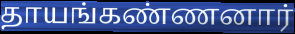
தாயங்கண்ணனார்